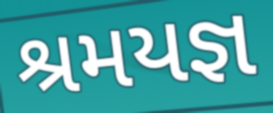
શ્રમયજ્ઞ